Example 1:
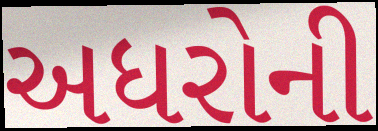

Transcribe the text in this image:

અધરોની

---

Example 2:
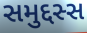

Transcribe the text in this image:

સમુદ્દસ્સ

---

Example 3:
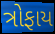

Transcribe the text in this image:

ત્રોફાય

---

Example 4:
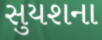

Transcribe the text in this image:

સુયશના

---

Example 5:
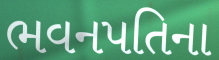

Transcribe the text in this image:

ભવનપતિના